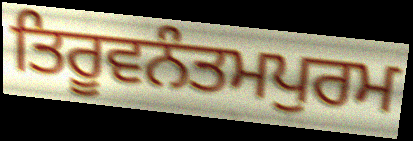
ਤਿਰੂਵਨੰਤਮਪੁਰਮ